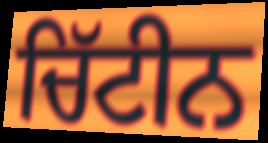
ਚਿੱਟੀਨ